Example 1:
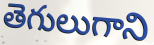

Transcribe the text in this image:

తెగులుగాని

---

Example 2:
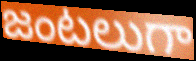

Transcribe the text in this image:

జంటలుగా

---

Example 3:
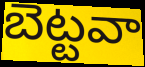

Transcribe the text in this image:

బెట్టవా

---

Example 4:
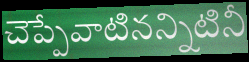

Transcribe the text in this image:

చెప్పేవాటినన్నిటినీ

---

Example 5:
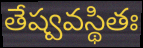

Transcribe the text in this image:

తేష్వవస్థితః